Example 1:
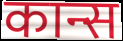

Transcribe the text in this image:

कान्‍स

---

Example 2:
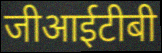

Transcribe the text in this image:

जीआईटीबी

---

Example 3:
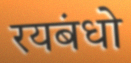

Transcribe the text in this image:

रयबंधो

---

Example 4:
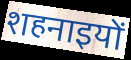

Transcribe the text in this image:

शहनाइयों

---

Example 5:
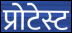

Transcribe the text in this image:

प्रोटेस्ट